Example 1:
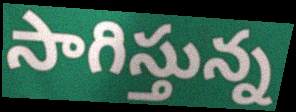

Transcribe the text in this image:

సాగిస్తున్న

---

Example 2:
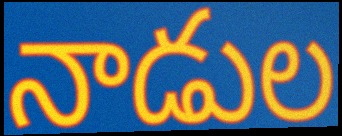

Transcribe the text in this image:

నాడుల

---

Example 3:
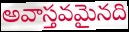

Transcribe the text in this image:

అవాస్తవమైనది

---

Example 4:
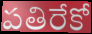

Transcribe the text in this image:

పతిరేకో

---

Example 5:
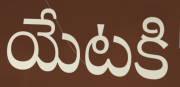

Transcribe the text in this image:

యేటకి